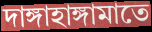
দাঙ্গাহাঙ্গামাতে